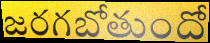
జరగబోతుందో